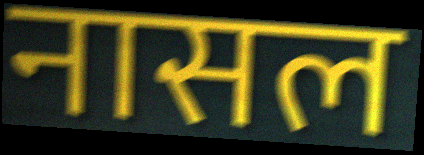
नासल